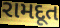
રામદૂત